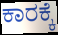
ಕಾರಕ್ಕೆ